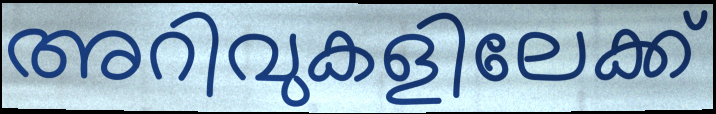
അറിവുകളിലേക്ക്